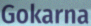
Gokarna